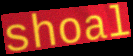
shoal